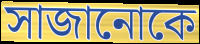
সাজানোকে